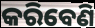
କରିବେଣି